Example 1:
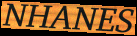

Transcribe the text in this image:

NHANES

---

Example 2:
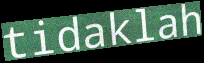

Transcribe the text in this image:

tidaklah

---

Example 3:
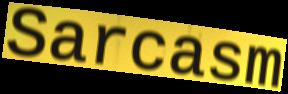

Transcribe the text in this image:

Sarcasm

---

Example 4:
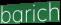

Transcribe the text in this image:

barich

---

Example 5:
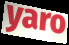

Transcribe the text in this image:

yaro